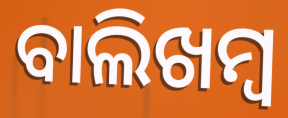
ବାଲିଖମ୍ବ